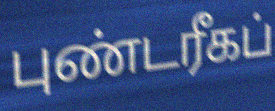
புண்டரீகப்